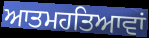
ਆਤਮਹਤਿਆਵਾਂ